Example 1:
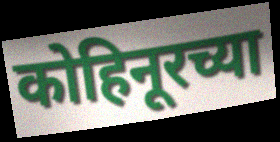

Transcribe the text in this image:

कोहिनूरच्या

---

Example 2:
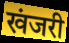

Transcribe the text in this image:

खंजरी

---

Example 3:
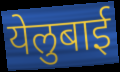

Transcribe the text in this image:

येलुबाई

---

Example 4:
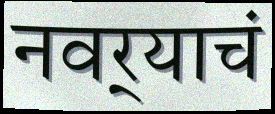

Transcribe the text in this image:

नवर्याचं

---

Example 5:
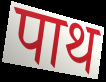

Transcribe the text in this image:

पाथ